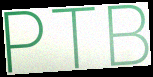
PTB